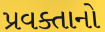
પ્રવક્તાનો